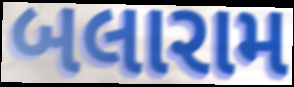
બલારામ